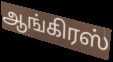
ஆங்கிரஸ்